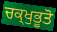
ਚਕ੍ਖੁਭੂਤੋ